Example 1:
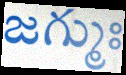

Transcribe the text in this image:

జగ్ముః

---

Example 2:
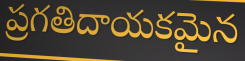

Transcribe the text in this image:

ప్రగతిదాయకమైన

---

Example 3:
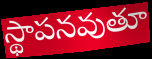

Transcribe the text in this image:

స్థాపనవుతూ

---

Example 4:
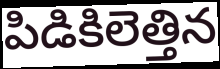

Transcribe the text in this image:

పిడికిలెత్తిన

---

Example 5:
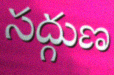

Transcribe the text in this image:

సద్గుణ